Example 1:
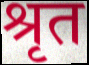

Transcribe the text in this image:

श्रृत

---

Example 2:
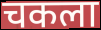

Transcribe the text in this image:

चकला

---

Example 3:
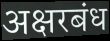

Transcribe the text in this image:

अक्षरबंध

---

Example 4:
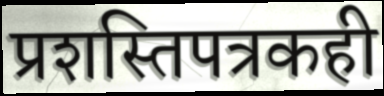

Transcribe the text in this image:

प्रशस्तिपत्रकही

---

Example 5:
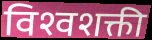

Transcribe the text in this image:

विश्वशक्ती